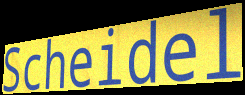
Scheidel